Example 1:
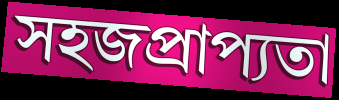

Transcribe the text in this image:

সহজপ্রাপ্যতা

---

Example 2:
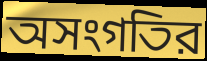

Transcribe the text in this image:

অসংগতির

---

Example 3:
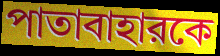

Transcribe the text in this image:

পাতাবাহারকে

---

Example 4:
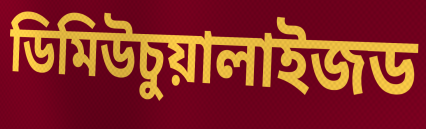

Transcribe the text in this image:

ডিমিউচুয়ালাইজড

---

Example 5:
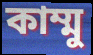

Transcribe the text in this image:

কাম্মু